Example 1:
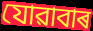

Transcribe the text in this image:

যোৱাবাৰ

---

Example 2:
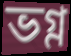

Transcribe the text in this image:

ভগ্ন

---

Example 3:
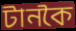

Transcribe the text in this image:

টানকৈ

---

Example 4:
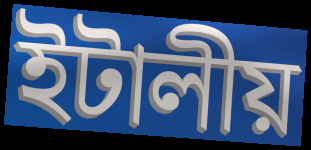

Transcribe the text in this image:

ইটালীয়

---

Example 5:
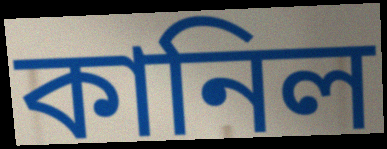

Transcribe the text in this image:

কানিল